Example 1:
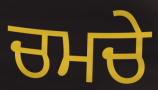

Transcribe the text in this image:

ਚਮਚੇ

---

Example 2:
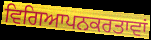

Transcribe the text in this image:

ਵਿਗਿਆਪਨਕਰਤਾਵਾਂ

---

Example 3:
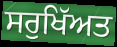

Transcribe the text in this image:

ਸਰੁਖਿੱਅਤ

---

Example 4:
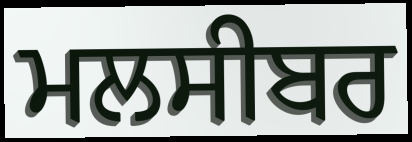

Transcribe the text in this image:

ਮਲਸੀਬਰ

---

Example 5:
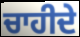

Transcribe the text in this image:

ਚਾਹੀਦੇ